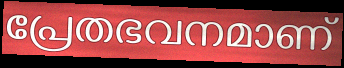
പ്രേതഭവനമാണ്